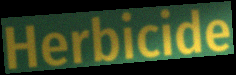
Herbicide